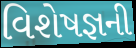
વિશેષજ્ઞની